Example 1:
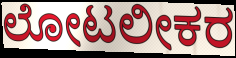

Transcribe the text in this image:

ಲೋಟಲೀಕರ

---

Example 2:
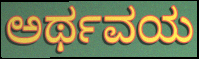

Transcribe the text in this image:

ಅರ್ಥವಯ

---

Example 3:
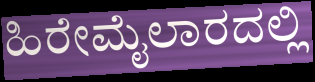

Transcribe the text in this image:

ಹಿರೇಮೈಲಾರದಲ್ಲಿ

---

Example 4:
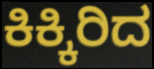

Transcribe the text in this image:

ಕಿಕ್ಕಿರಿದ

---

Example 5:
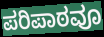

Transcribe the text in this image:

ಪರಿಪಾಠವೂ